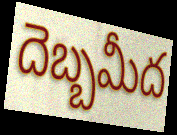
దెబ్బమీద